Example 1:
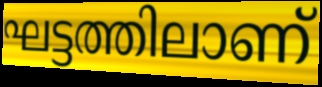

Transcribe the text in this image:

ഘട്ടത്തിലാണ്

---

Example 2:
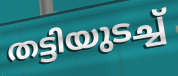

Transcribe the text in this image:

തട്ടിയുടച്ച്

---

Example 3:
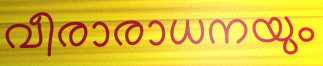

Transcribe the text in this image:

വീരാരാധനയും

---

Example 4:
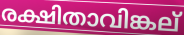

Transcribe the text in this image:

രക്ഷിതാവിങ്കല്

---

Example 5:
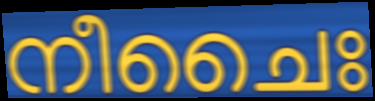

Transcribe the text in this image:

നീചൈഃ